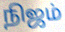
நிஜம்